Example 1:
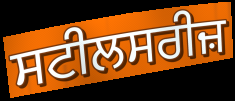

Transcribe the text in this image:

ਸਟੀਲਸਰੀਜ਼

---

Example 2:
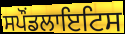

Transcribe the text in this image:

ਸਪੌਂਡਲਾਇਟਿਸ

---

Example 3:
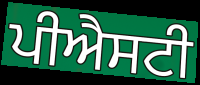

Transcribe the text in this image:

ਪੀਐਸਟੀ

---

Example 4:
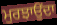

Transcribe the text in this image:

ਮੁਰਝਾਉਂਦਾ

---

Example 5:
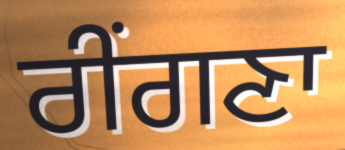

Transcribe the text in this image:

ਰੀਂਗਣਾ